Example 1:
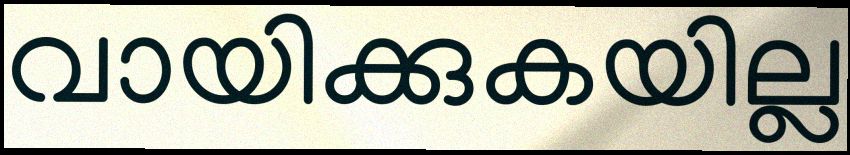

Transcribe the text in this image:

വായിക്കുകയില്ല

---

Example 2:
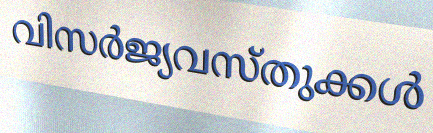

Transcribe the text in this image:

വിസർജ്യവസ്തുക്കൾ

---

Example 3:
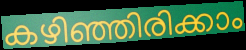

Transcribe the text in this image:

കഴിഞ്ഞിരിക്കാം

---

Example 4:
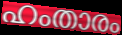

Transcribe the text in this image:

ഹംതാരം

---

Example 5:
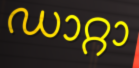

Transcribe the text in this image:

ഡാറ്റാ